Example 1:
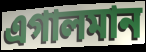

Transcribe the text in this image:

এগালমান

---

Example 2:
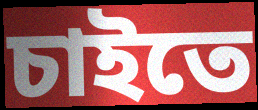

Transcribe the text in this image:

চাইতে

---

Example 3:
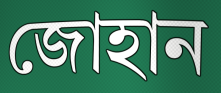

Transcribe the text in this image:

জোহান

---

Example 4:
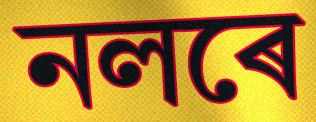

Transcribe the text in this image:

নলৰে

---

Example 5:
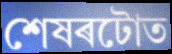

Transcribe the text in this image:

শেষৰটোত